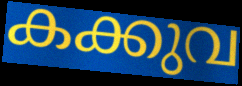
കക്കുവ